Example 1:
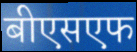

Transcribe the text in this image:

बीएसएफ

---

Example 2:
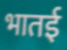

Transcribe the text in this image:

भातई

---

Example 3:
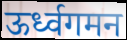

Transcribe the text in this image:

ऊर्ध्वगमन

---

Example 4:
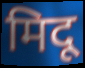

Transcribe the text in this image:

मिदू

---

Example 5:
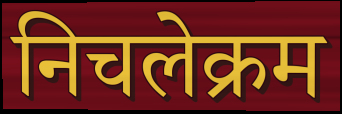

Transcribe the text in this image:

निचलेक्रम